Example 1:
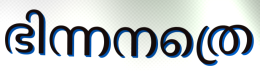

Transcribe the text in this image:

ഭിന്നനത്രെ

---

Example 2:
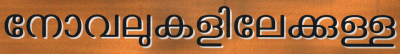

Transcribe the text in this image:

നോവലുകളിലേക്കുള്ള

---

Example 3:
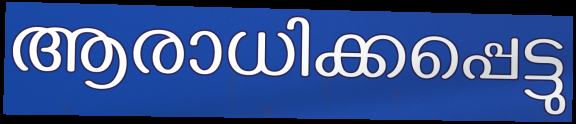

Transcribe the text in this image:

ആരാധിക്കപ്പെട്ടു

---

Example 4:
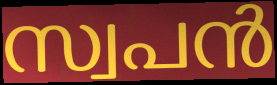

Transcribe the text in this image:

സ്വപൻ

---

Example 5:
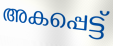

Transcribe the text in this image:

അകപ്പെട്ട്